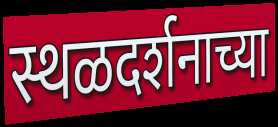
स्थळदर्शनाच्या